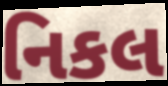
નિકલ